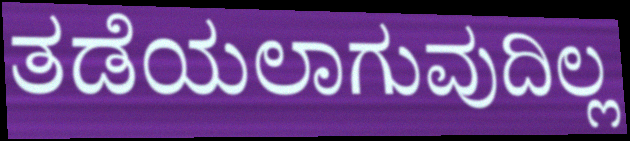
ತಡೆಯಲಾಗುವುದಿಲ್ಲ